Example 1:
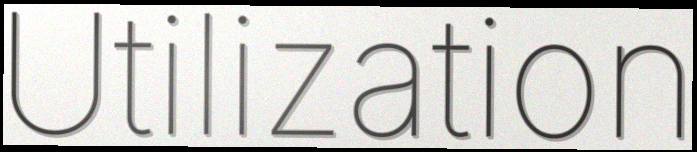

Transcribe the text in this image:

Utilization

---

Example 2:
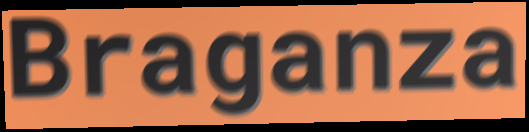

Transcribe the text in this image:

Braganza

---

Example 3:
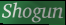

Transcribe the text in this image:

Shogun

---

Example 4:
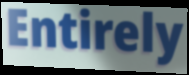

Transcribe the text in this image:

Entirely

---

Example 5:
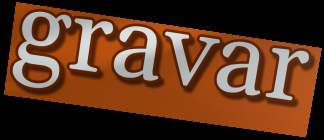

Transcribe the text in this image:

gravar